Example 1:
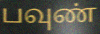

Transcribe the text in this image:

பவுண்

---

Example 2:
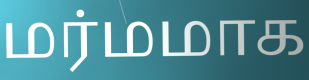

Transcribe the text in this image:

மர்மமாக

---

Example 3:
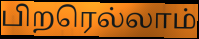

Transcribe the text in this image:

பிறரெல்லாம்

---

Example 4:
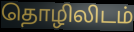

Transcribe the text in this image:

தொழிலிடம்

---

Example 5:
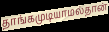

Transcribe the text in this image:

தாங்கமுடியாமல்தான்